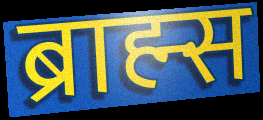
ब्राह्म्स